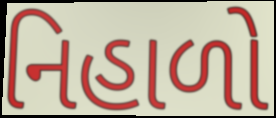
નિહાળો